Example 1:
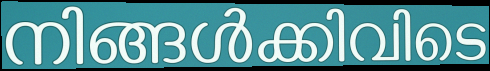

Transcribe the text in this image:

നിങ്ങൾക്കിവിടെ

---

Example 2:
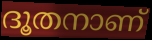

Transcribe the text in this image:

ദൂതനാണ്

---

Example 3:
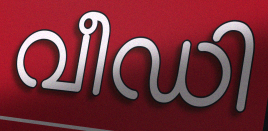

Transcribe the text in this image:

വീഡി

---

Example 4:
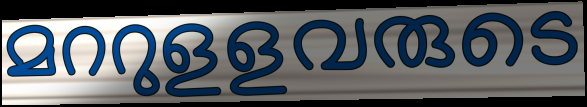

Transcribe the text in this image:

മററുളളവരുടെ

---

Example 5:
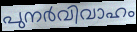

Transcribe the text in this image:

പുനർവിവാഹം